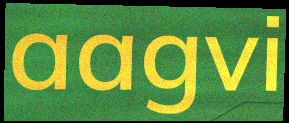
aagvi